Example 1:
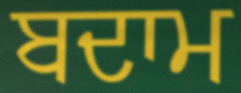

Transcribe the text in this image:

ਬਦਾਮ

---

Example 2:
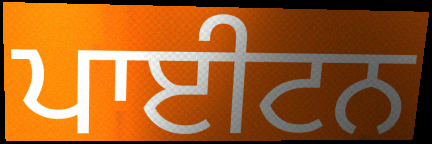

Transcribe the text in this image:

ਪਾਈਟਨ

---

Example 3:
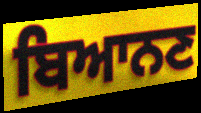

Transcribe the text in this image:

ਬਿਆਨਣ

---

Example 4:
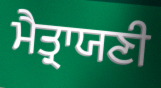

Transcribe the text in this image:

ਮੈਤ੍ਰਾਯਣੀ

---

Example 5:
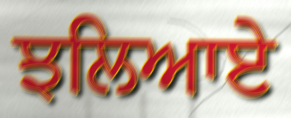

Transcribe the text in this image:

ਝਲਿਆਏ